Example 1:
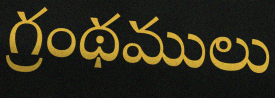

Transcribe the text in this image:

గ్రంథములు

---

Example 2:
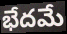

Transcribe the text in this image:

భేదమే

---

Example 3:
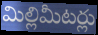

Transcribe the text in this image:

మిల్లిమీటర్లు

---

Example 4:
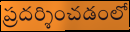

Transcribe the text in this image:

ప్రదర్శించడంలో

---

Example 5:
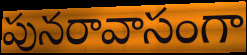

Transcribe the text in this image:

పునరావాసంగా